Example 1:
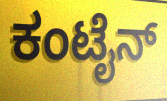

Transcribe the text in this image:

ಕಂಟೈನ್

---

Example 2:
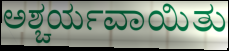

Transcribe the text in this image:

ಅಶ್ಚರ್ಯವಾಯಿತು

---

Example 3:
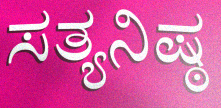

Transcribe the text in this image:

ಸತ್ಯನಿಷ್ಠ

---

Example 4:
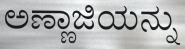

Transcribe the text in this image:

ಅಣ್ಣಾಜಿಯನ್ನು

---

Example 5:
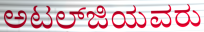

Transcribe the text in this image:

ಅಟಲ್‍ಜಿಯವರು